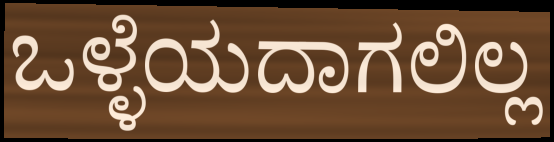
ಒಳ್ಳೆಯದಾಗಲಿಲ್ಲ